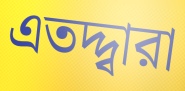
এতদ্দ্বারা